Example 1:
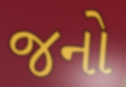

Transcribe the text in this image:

જનો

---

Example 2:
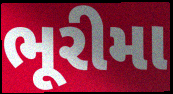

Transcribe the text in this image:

ભૂરીમા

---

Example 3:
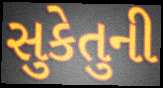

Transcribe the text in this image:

સુકેતુની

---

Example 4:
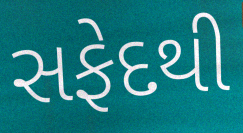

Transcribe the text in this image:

સફેદથી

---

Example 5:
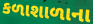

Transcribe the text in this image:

કળાશાળાના